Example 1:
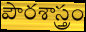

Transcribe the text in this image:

పౌరశాస్త్రం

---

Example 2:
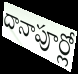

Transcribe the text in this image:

దానాపూర్లో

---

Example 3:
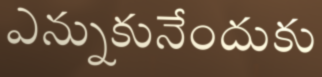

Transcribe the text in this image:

ఎన్నుకునేందుకు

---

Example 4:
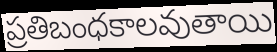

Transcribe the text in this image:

ప్రతిబంధకాలవుతాయి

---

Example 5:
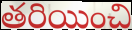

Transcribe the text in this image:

తరియించి